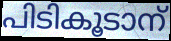
പിടികൂടാന്